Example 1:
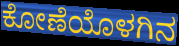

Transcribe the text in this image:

ಕೋಣೆಯೊಳಗಿನ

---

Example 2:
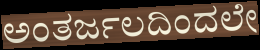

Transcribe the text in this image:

ಅಂತರ್ಜಲದಿಂದಲೇ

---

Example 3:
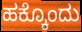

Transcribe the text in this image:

ಹಕ್ಕೊಂದು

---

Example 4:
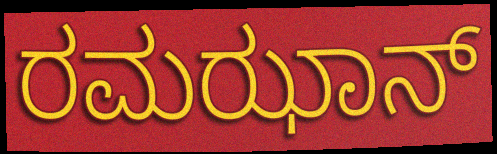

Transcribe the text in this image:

ರಮಝಾನ್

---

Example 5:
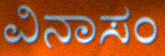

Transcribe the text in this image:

ವಿನಾಸಂ